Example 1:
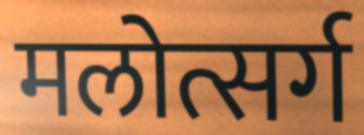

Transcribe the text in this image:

मलोत्सर्ग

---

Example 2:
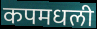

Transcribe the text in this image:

कपमधली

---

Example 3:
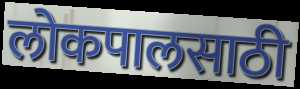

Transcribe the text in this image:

लोकपालसाठी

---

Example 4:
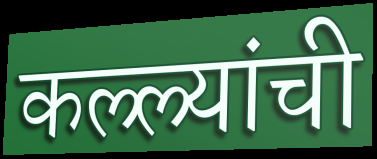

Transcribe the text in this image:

कल्ल्यांची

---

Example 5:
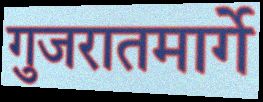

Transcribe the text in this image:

गुजरातमार्गे